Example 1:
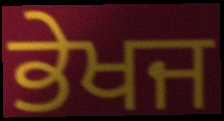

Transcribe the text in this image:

ਭੇਖਜ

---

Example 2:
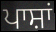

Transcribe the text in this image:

ਪਾਸ਼ਾਂ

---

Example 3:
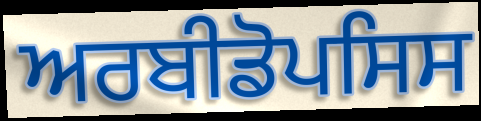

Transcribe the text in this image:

ਅਰਬੀਡੋਪਸਿਸ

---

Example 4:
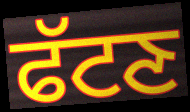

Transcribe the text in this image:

ਫੱਟਣ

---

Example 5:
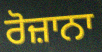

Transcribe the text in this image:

ਰੋਜ਼ਾਨਾ